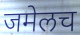
जमेलच